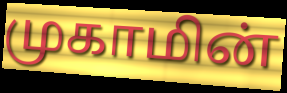
முகாமின்